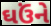
ઘઉંને